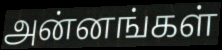
அன்னங்கள்